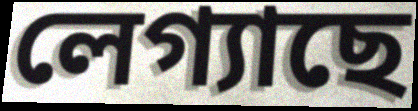
লেগ্যাছে